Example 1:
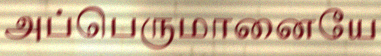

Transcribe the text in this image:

அப்பெருமானையே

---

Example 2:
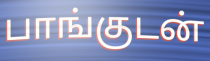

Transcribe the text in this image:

பாங்குடன்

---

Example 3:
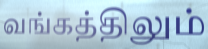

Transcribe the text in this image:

வங்கத்திலும்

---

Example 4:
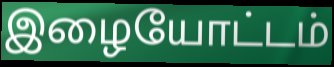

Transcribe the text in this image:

இழையோட்டம்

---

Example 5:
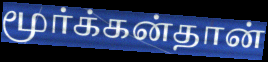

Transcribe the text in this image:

மூர்க்கன்தான்